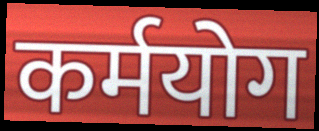
कर्मयोग